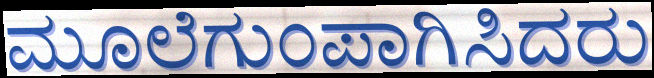
ಮೂಲೆಗುಂಪಾಗಿಸಿದರು